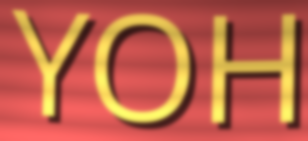
YOH